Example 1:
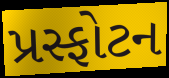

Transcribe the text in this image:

પ્રસ્ફોટન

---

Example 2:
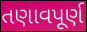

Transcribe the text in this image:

તણાવપૂર્ણ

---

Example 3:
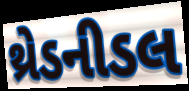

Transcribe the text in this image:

થ્રેડનીડલ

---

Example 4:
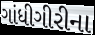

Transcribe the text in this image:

ગાંધીગીરીના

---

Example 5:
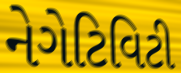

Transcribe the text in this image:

નેગેટિવિટી